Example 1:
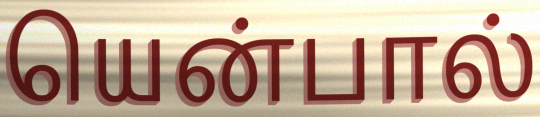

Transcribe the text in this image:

யென்பால்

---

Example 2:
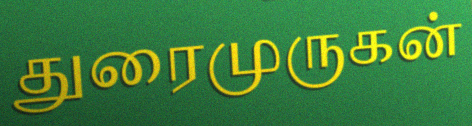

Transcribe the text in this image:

துரைமுருகன்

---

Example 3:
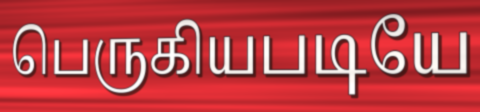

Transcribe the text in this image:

பெருகியபடியே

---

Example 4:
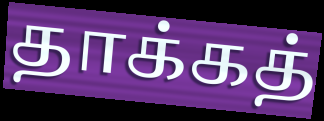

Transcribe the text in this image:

தாக்கத்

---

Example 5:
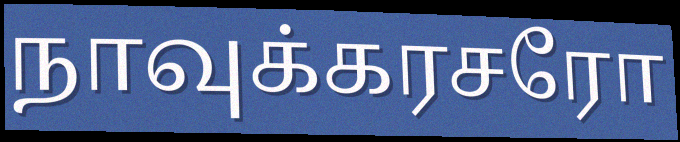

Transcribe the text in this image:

நாவுக்கரசரோ